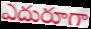
ఎదురూగా